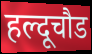
हल्दूचौड